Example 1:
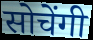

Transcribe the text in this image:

सोचेंगी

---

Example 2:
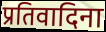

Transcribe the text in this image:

प्रतिवादिना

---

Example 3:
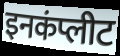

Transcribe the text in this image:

इनकंप्लीट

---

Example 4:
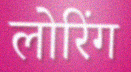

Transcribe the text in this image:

लोरिंग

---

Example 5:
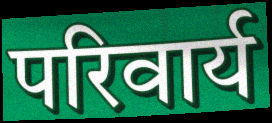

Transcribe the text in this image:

परिवार्य